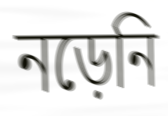
নড়েনি